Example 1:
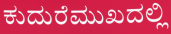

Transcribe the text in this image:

ಕುದುರೆಮುಖದಲ್ಲಿ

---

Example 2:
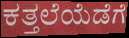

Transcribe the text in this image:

ಕತ್ತಲೆಯೆಡೆಗೆ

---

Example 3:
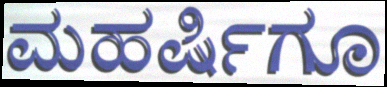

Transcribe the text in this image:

ಮಹರ್ಷಿಗೂ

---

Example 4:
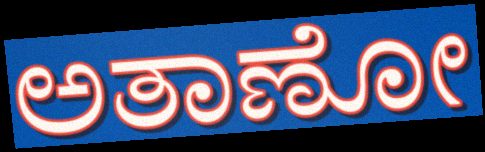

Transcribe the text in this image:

ಅತಾಣೋ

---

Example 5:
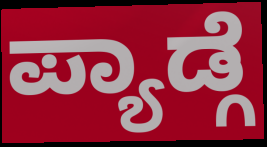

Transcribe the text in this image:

ಪ್ಯಾಡ್ಗೆ